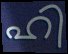
ഹി